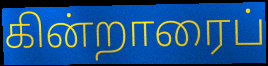
கின்றாரைப்